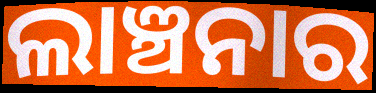
ଲାଞ୍ଚନାର